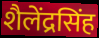
शैलेंद्रसिंह